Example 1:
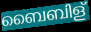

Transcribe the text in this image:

ബൈബിള്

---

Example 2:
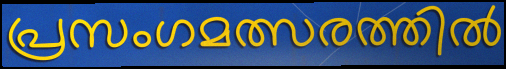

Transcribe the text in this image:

പ്രസംഗമത്സരത്തിൽ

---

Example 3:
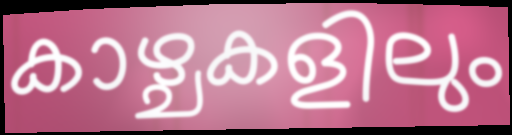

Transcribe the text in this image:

കാഴ്ചകളിലും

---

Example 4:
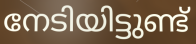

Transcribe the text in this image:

നേടിയിട്ടുണ്ട്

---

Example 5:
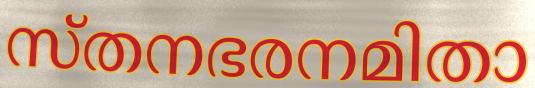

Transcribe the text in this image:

സ്തനഭരനമിതാ